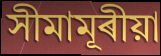
সীমামূৰীয়া